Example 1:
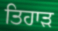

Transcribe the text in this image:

ਤਿਹਾੜ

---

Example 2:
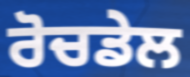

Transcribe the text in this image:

ਰੋਚਡੇਲ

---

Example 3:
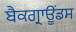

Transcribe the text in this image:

ਬੈਕਗ੍ਰਾਊਂਡਸ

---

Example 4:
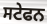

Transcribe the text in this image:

ਸਟੇਫਨ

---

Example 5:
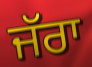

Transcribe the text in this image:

ਜੱਰਾ